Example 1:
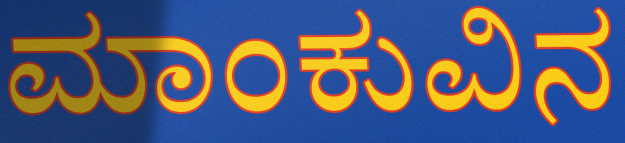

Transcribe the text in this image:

ಮಾಂಕುವಿನ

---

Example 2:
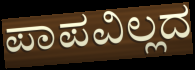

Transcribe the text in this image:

ಪಾಪವಿಲ್ಲದ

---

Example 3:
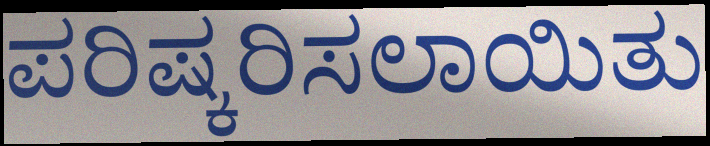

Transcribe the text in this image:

ಪರಿಷ್ಕರಿಸಲಾಯಿತು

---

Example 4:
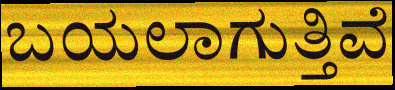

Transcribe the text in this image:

ಬಯಲಾಗುತ್ತಿವೆ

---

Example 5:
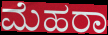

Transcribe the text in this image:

ಮೆಹರಾ